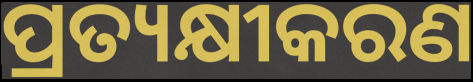
ପ୍ରତ୍ୟକ୍ଷୀକରଣ